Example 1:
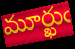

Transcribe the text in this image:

మూర్ఖుఁ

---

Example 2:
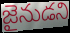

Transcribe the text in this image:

జైనుడని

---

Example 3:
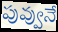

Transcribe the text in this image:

పువ్వునే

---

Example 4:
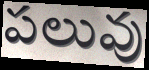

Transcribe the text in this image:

పలువు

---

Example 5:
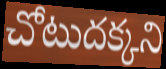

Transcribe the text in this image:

చోటుదక్కని